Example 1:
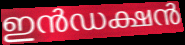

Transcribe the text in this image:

ഇൻഡക്ഷൻ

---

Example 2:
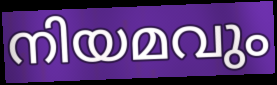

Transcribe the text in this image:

നിയമവും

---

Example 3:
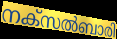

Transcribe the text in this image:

നക്സൽബാരി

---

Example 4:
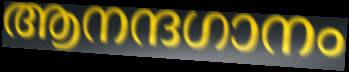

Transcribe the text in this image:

ആനന്ദഗാനം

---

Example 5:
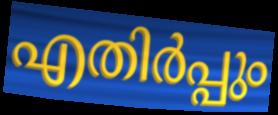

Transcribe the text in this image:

എതിർപ്പും